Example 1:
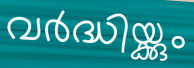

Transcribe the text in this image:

വർദ്ധിയ്ക്കും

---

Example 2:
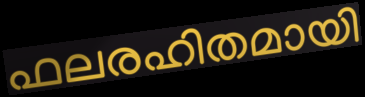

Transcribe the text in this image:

ഫലരഹിതമായി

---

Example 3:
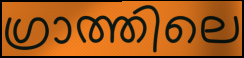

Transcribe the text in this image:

ഗ്രാത്തിലെ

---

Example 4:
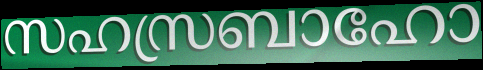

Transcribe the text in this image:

സഹസ്രബാഹോ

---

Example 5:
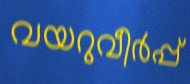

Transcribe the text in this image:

വയറുവീർപ്പ്